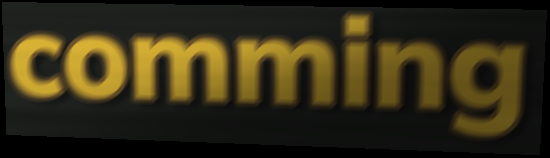
comming